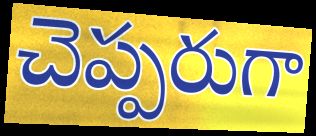
చెప్పరుగా